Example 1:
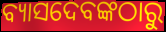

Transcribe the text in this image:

ବ୍ୟାସଦେବଙ୍କଠାରୁ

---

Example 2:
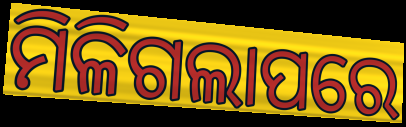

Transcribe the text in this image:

ମିଳିଗଲାପରେ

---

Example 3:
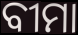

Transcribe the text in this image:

ବୀମା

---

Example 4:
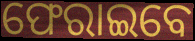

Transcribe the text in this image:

ଫେରାଇବେ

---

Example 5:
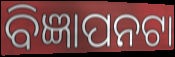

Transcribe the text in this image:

ବିଜ୍ଞାପନଟା